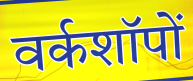
वर्कशॉपों